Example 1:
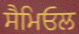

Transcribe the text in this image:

ਸੈਮਿਓਲ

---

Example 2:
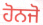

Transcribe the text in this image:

ਹੋਨਜੋ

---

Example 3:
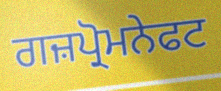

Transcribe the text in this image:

ਗਜ਼ਪ੍ਰੋਮਨੇਫਟ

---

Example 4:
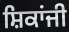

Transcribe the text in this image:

ਸ਼ਿਕਾਂਜੀ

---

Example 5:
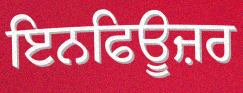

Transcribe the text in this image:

ਇਨਫਿਊਜ਼ਰ